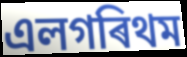
এলগৰিথম